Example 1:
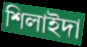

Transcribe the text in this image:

শিলাইদা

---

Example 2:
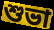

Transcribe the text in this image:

শুভা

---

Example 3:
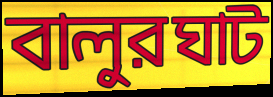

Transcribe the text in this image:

বালুরঘাট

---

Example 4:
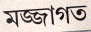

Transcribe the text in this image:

মজ্জাগত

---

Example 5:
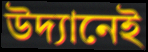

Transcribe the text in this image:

উদ্যানেই